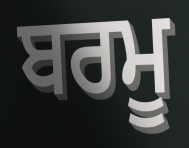
ਬਰਮੂ